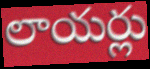
లాయర్లు